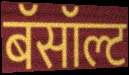
बॅसॉल्ट